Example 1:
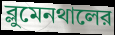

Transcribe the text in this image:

ব্লুমেনথালের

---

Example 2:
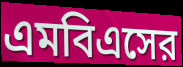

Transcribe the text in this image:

এমবিএসের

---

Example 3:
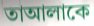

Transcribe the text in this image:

তাআলাকে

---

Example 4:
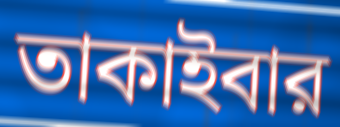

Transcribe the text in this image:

তাকাইবার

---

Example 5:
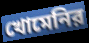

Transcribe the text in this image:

খোমেনির